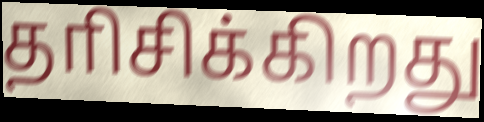
தரிசிக்கிறது